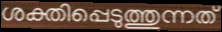
ശക്തിപ്പെടുത്തുന്നത്